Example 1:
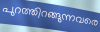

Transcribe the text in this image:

പുറത്തിറങ്ങുന്നവരെ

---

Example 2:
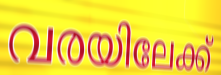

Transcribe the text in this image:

വരയിലേക്ക്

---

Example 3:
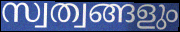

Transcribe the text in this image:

സ്വത്വങ്ങളും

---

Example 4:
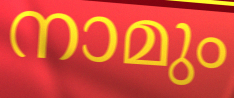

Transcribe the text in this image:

നാമും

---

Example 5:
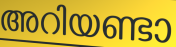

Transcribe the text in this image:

അറിയണ്ടാ